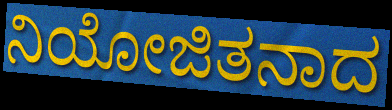
ನಿಯೋಜಿತನಾದ